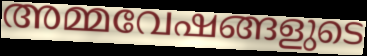
അമ്മവേഷങ്ങളുടെ